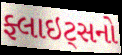
ફ્લાઇટ્સનો